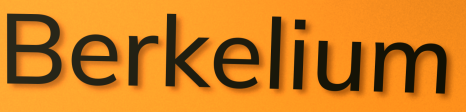
Berkelium